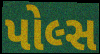
પોલ્સ